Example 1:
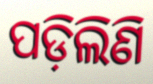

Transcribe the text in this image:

ପଡ଼ିଲିଣି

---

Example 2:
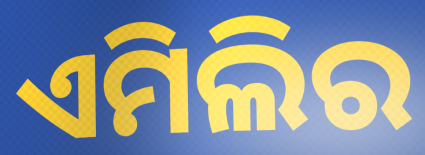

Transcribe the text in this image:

ଏମିଲିର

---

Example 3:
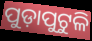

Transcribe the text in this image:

ପୁଡ଼ାପୁଟୁଳି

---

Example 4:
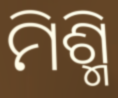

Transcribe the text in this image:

ମିଶ୍ମି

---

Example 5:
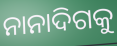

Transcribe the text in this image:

ନାନାଦିଗକୁ